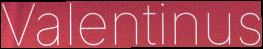
Valentinus